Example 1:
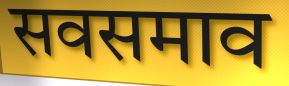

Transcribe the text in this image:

सवसमाव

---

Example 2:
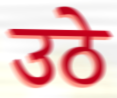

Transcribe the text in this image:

उठे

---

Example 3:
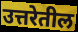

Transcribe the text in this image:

उत्तरेतील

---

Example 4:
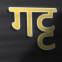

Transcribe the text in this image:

गट्ट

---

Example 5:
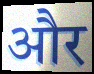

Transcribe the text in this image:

और